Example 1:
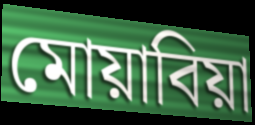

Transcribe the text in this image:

মোয়াবিয়া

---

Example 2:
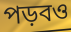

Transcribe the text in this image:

পড়বও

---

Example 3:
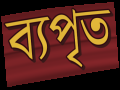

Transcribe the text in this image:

ব্যপৃত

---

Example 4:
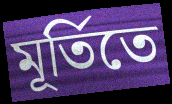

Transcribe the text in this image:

মূর্তিতে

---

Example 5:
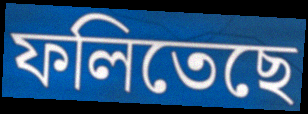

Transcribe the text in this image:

ফলিতেছে